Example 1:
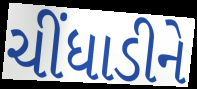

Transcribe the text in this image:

ચીંધાડીને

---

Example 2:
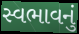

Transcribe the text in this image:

સ્વભાવનું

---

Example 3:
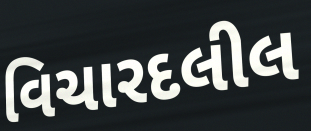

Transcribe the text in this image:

વિચારદલીલ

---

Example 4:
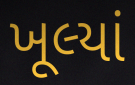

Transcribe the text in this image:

ખૂલ્યાં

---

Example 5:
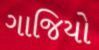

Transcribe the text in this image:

ગાજિયો